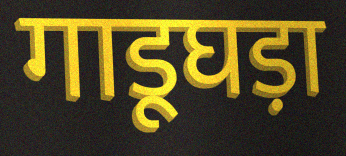
गाडूघड़ा